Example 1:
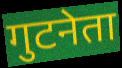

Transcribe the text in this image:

गुटनेता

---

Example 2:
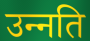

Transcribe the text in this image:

उन्‍नति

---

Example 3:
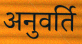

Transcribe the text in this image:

अनुवर्ति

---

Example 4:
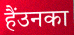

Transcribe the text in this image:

हैंउनका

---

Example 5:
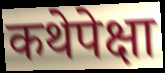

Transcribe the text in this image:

कथेपेक्षा